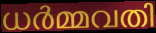
ധർമ്മവതി